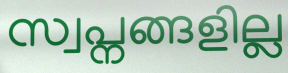
സ്വപ്നങ്ങളില്ല